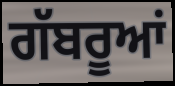
ਗੱਬਰੂਆਂ